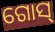
ଗୋସ୍